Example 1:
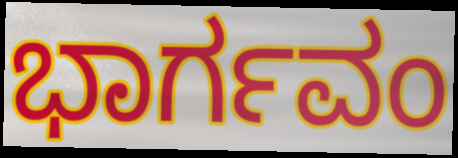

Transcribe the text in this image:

ಭಾರ್ಗವಂ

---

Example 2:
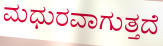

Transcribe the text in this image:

ಮಧುರವಾಗುತ್ತದೆ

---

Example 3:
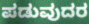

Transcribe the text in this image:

ಪಡುವುದರ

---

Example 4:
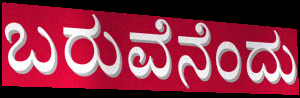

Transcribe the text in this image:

ಬರುವೆನೆಂದು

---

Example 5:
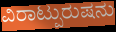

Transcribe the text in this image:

ವಿರಾಟ್ಪುರುಷನು